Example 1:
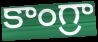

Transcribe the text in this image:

కాంగ్రా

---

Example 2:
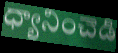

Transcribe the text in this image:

ధ్యానించెడి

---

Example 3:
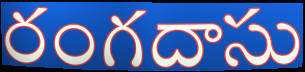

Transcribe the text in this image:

రంగదాసు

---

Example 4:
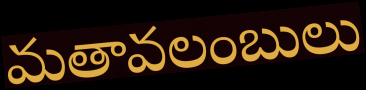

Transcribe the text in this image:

మతావలంబులు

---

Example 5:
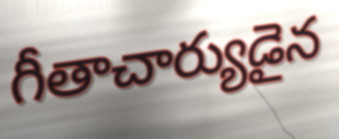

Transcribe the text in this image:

గీతాచార్యుడైన